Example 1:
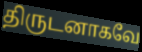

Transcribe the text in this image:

திருடனாகவே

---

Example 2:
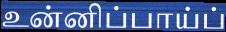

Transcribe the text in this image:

உன்னிப்பாய்ப்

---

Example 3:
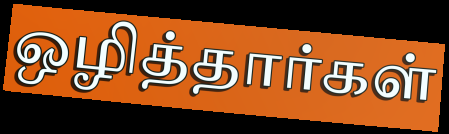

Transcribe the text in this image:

ஒழித்தார்கள்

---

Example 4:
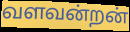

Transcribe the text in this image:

வளவன்றன்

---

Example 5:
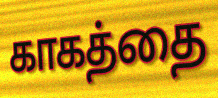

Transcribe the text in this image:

காகத்தை